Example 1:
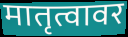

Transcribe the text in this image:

मातृत्वावर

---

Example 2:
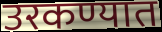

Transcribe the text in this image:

उरकण्यात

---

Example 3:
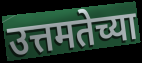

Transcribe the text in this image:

उत्तमतेच्या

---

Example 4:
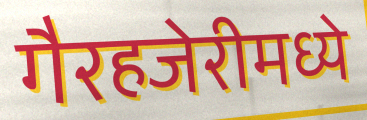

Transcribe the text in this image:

गैरहजेरीमध्ये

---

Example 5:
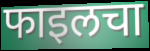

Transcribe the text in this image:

फाइलचा